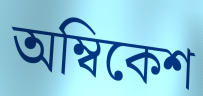
অম্বিকেশ